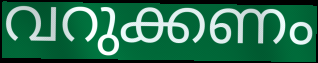
വറുക്കണം